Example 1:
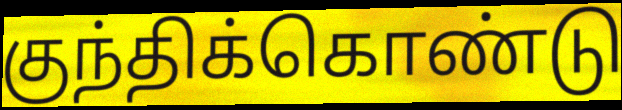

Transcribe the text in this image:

குந்திக்கொண்டு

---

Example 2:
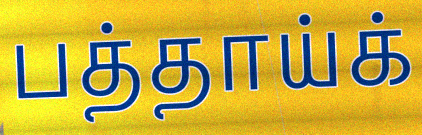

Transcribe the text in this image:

பத்தாய்க்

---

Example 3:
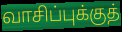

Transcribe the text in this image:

வாசிப்புக்குத்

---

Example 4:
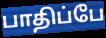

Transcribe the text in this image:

பாதிப்பே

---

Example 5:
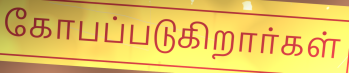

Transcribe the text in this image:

கோபப்படுகிறார்கள்